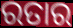
ରତାର